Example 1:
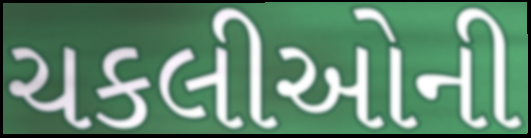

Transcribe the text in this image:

ચકલીઓની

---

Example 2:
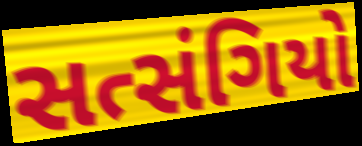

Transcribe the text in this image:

સત્સંગિયો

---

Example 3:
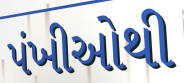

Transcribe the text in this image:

પંખીઓથી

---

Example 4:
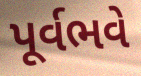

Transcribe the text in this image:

પૂર્વભવે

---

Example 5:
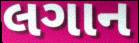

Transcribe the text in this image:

લગાન